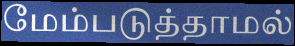
மேம்படுத்தாமல்